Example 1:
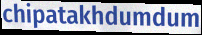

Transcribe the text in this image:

chipatakhdumdum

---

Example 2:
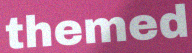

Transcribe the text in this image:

themed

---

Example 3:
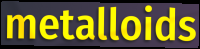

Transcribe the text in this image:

metalloids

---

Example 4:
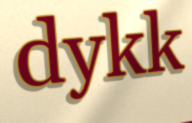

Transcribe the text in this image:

dykk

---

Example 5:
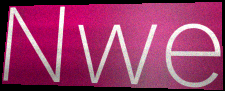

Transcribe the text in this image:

Nwe